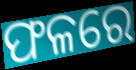
ଫଳରେ